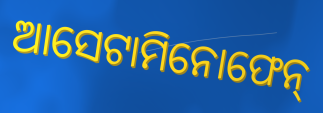
ଆସେଟାମିନୋଫେନ୍